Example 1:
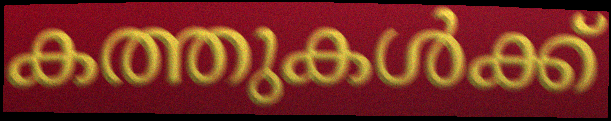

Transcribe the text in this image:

കത്തുകൾക്ക്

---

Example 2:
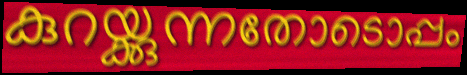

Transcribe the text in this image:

കുറയ്ക്കുന്നതോടൊപ്പം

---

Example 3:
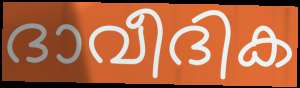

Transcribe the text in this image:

ദാവീദിക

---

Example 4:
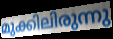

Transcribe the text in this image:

മുക്കിലിരുന്നു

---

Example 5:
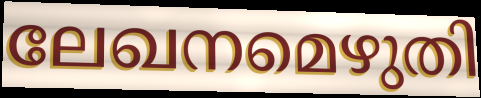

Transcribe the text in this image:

ലേഖനമെഴുതി